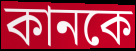
কানকে